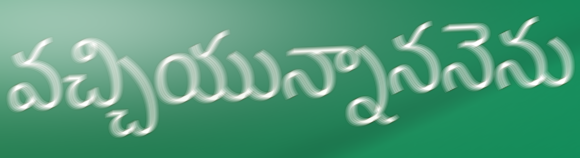
వచ్చియున్నాననెను